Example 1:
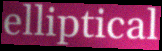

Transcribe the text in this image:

elliptical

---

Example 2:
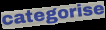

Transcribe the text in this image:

categorise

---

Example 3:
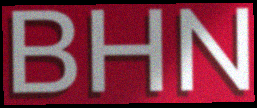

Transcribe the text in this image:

BHN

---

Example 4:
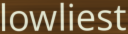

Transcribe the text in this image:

lowliest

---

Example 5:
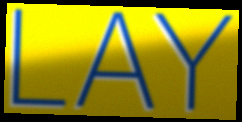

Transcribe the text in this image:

LAY